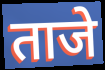
ताजे